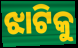
ଝାଟିକୁ